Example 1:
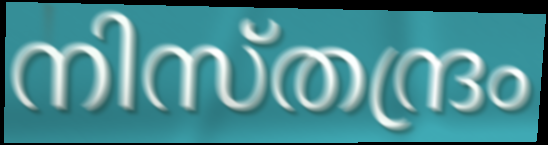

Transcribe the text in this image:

നിസ്തന്ദ്രം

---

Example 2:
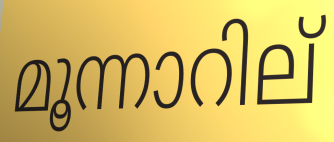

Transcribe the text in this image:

മൂന്നാറില്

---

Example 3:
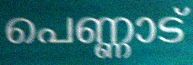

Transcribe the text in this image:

പെണ്ണാട്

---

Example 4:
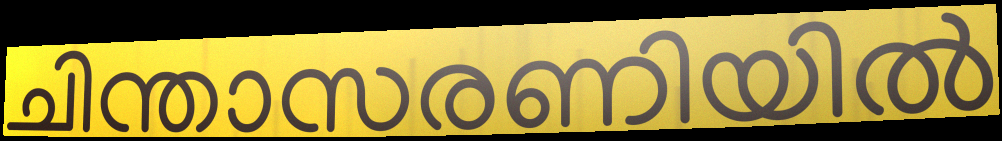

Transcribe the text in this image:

ചിന്താസരണിയിൽ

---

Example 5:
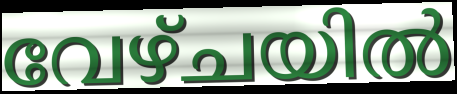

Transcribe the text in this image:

വേഴ്ചയിൽ